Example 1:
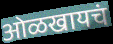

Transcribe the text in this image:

ओळखायचं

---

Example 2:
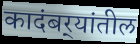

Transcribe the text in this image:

कादंबर्यांतील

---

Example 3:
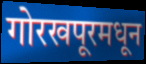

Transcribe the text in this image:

गोरखपूरमधून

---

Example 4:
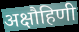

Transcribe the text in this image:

अक्षौहिणी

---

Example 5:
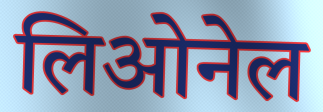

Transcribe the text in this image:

लिओनेल